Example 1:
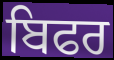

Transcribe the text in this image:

ਬਿਫਰ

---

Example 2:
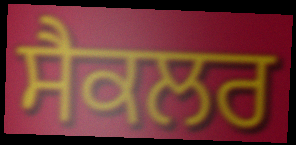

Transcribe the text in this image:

ਸੈਕਲਰ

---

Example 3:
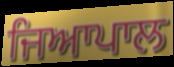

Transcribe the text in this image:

ਜਿਆਪਾਲ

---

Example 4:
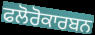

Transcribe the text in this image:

ਫਲੋਰੋਕਾਰਬਨ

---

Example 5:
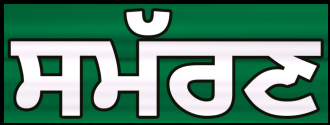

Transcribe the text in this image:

ਸਮੱਰਣ